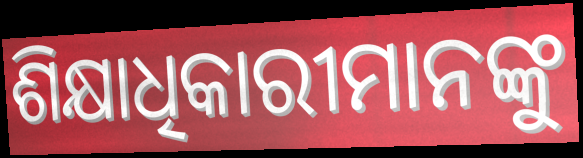
ଶିକ୍ଷାଧିକାରୀମାନଙ୍କୁ